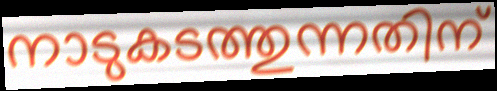
നാടുകടത്തുന്നതിന്